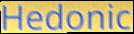
Hedonic